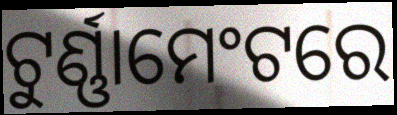
ଟୁର୍ଣ୍ଣାମେଂଟରେ